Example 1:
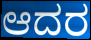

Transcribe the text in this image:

ಆದರ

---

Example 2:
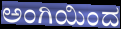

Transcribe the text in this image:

ಅಂಗಿಯಿಂದ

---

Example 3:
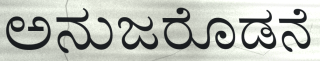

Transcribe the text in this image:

ಅನುಜರೊಡನೆ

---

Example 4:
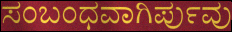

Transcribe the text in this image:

ಸಂಬಂಧವಾಗಿರ್ಪುವು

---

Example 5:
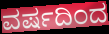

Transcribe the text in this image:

ವರ್ಷದಿಂದ